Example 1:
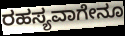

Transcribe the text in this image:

ರಹಸ್ಯವಾಗೇನೂ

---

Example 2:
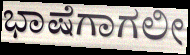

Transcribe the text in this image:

ಭಾಷೆಗಾಗಲೀ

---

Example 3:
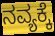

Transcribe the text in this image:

ನವ್ಯಕ್ಕೆ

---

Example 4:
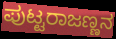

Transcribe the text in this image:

ಪುಟ್ಟರಾಜಣ್ಣನ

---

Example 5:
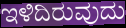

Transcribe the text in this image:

ಇಳಿದಿರುವುದು